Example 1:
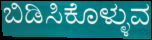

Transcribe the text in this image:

ಬಿಡಿಸಿಕೊಳ್ಳುವ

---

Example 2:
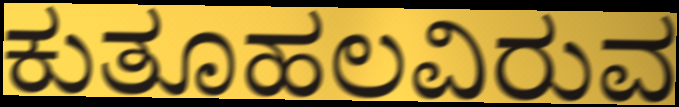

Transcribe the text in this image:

ಕುತೂಹಲವಿರುವ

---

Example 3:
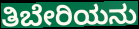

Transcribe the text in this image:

ತಿಬೇರಿಯನು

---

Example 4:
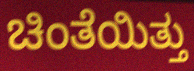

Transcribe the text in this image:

ಚಿಂತೆಯಿತ್ತು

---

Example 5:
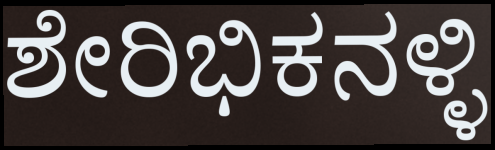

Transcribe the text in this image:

ಶೇರಿಭಿಕನಳ್ಳಿ